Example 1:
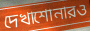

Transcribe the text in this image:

দেখাশোনারও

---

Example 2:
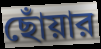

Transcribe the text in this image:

ছোঁয়ার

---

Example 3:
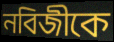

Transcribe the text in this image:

নবিজীকে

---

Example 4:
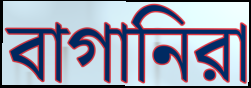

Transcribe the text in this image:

বাগানিরা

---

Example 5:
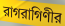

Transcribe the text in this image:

রাগরাগিণীর